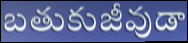
బతుకుజీవుడా